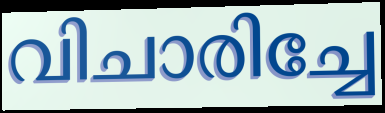
വിചാരിച്ചേ